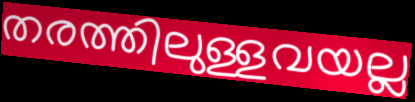
തരത്തിലുള്ളവയല്ല